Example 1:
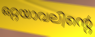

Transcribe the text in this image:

ഒറ്റയാവലിന്റെ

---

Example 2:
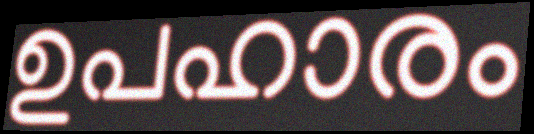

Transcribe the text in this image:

ഉപഹാരം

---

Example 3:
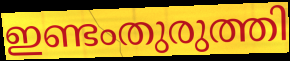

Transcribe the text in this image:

ഇണ്ടംതുരുത്തി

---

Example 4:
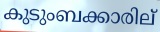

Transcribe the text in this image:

കുടുംബക്കാരില്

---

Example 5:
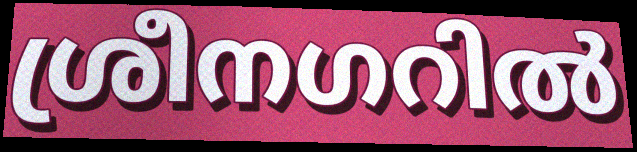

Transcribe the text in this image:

ശ്രീനഗറിൽ